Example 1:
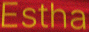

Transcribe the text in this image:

Estha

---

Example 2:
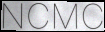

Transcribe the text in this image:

NCMC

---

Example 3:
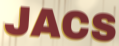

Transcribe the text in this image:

JACS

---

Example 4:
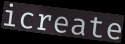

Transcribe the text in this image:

icreate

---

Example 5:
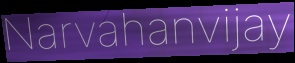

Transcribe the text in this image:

Narvahanvijay